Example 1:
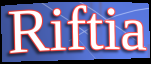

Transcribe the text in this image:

Riftia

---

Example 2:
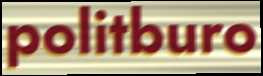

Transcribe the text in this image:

politburo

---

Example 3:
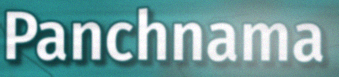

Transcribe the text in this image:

Panchnama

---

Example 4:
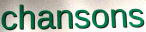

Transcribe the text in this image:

chansons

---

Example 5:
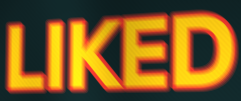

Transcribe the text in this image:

LIKED